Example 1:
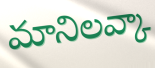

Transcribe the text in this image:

మానిలవ్కా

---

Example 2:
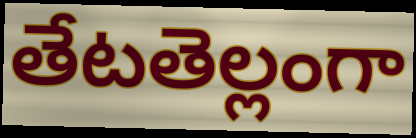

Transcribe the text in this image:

తేటతెల్లంగా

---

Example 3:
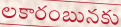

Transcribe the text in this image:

లకారంబునకు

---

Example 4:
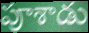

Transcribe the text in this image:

పూశాడు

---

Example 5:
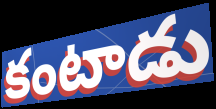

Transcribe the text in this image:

కంటాడు